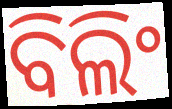
ବିଲିଂ